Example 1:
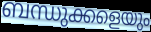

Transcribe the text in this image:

ബന്ധുക്കളെയും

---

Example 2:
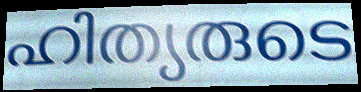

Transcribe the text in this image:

ഹിത്യരുടെ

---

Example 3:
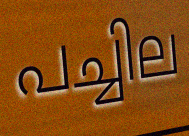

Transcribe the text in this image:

പച്ചില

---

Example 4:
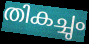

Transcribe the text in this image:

തികച്ചും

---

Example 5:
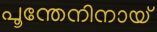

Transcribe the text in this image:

പൂന്തേനിനായ്